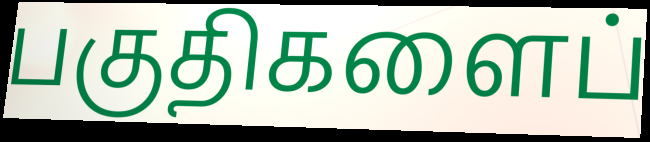
பகுதிகளைப்